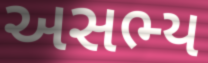
અસભ્ય